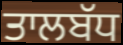
ਤਾਲਬੱਧ